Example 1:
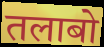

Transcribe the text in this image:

तलाबो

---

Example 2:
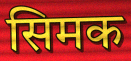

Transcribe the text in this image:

सिमक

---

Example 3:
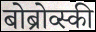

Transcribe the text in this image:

बोब्रोव्स्की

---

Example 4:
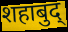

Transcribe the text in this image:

शहाबुद्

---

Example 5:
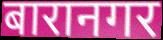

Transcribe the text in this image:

बारानगर